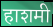
हाशमी